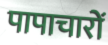
पापाचारों